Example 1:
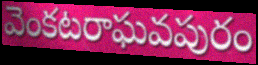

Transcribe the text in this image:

వెంకటరాఘవపురం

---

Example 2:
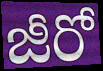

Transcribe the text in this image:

జీరో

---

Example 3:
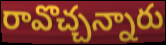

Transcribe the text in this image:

రావొచ్చన్నారు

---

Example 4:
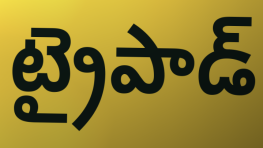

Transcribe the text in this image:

ట్రైపాడ్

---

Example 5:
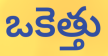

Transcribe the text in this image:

ఒకెత్తు